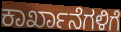
ಕಾರ್ಖಾನೆಗಳಿಗೆ